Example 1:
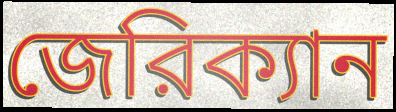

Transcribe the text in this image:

জেরিক্যান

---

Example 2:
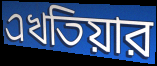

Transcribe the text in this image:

এখতিয়ার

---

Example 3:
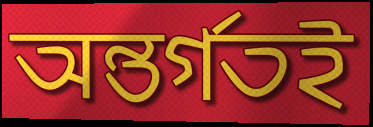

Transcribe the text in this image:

অন্তর্গতই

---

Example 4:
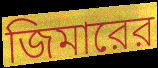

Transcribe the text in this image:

জিমারের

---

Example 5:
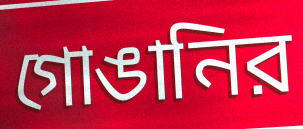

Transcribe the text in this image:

গোঙানির